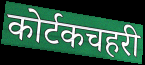
कोर्टकचहरी